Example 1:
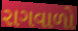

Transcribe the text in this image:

રાગવાળો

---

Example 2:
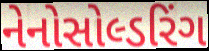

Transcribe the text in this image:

નેનોસોલ્ડરિંગ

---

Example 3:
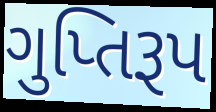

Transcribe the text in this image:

ગુપ્તિરૂપ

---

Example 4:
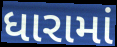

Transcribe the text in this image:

ધારામાં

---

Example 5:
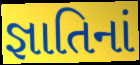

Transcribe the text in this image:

જ્ઞાતિનાં